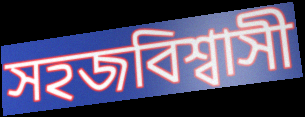
সহজবিশ্বাসী